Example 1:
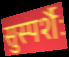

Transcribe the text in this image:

सुस्पर्शैः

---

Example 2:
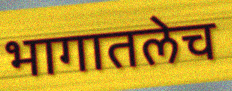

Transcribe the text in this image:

भागातलेच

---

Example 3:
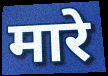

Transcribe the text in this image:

मारे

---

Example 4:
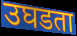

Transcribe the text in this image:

उघडता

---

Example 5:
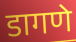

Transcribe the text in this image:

डागणे